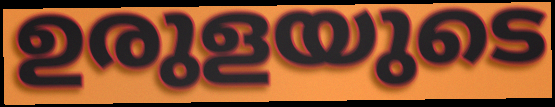
ഉരുളയുടെ